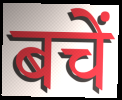
बचें